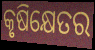
କୃଷିକ୍ଷେତର